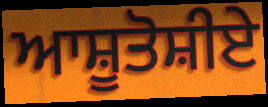
ਆਸ਼ੂਤੋਸ਼ੀਏ